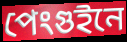
পেংগুইনে